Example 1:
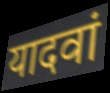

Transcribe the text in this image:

यादवां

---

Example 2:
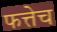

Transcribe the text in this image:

फत्तेच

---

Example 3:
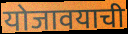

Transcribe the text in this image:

योजावयाची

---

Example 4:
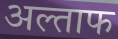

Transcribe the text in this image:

अल्ताफ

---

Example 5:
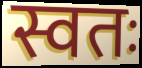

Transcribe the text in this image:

स्वतः